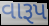
વારૂપ